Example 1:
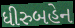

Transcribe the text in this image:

ધીરુબહેન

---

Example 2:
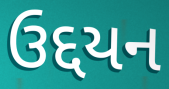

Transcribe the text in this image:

ઉદ્દયન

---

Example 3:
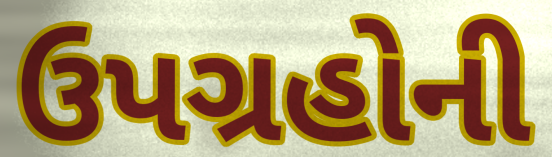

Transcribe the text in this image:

ઉપગ્રહોની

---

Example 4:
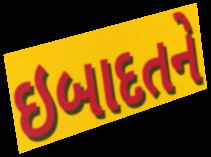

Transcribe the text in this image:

ઇબાદતને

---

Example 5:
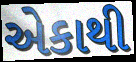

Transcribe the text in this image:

એકાથી